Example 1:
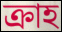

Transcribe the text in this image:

ক্রাহ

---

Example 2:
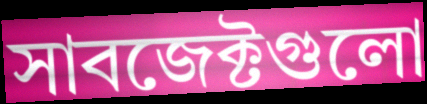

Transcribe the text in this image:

সাবজেক্টগুলো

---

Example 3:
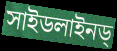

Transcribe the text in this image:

সাইডলাইনড্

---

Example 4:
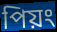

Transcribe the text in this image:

পিয়ং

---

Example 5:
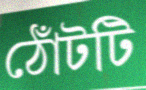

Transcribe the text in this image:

ঠোঁটটি